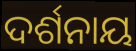
ଦର୍ଶନାୟ